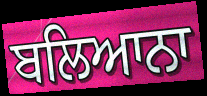
ਬਲਿਆਨਾ